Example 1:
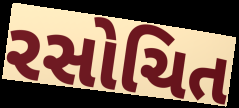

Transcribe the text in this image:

રસોચિત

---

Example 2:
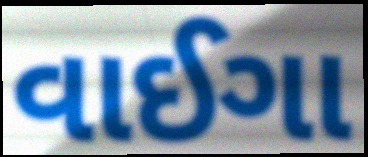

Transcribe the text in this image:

વાઈગા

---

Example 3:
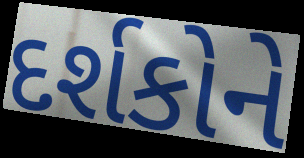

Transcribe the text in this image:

દર્શકોને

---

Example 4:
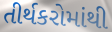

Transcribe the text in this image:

તીર્થકરોમાંથી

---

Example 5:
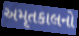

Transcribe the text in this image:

અમૃતકાલનો